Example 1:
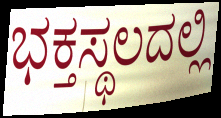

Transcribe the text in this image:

ಭಕ್ತಸ್ಥಲದಲ್ಲಿ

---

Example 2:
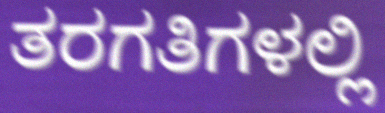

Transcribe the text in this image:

ತರಗತಿಗಳಲ್ಲಿ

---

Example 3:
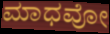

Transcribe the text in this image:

ಮಾಧವೋ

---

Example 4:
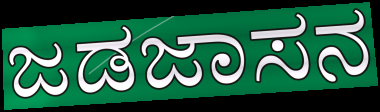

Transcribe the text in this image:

ಜಡಜಾಸನ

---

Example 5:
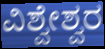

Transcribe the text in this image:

ವಿಶ್ವೇಶ್ವರ